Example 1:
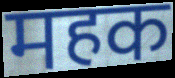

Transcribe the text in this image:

महक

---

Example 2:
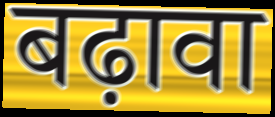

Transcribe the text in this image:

बढ़ावा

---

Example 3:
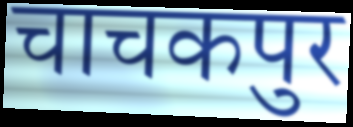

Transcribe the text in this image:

चाचकपुर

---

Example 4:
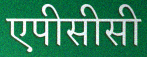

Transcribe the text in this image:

एपीसीसी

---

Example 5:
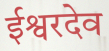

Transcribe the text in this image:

ईश्वरदेव